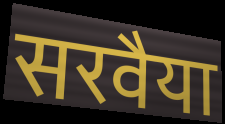
सरवैया